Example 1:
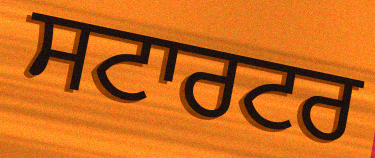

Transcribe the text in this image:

ਸਟਾਰਟਰ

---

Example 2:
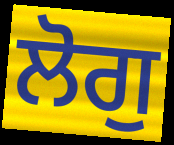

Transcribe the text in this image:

ਲੋਗੁ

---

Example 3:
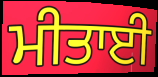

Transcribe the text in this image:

ਮੀਤਾਈ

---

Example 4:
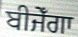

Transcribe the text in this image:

ਬੀਜੇਁਗਾ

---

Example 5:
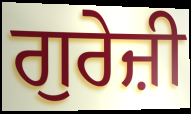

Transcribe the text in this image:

ਗੁਰੇਜ਼ੀ